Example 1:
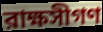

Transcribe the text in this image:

রাক্ষসীগণ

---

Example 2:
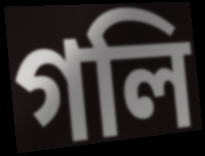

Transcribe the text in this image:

গলি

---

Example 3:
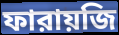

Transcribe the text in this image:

ফারায়জি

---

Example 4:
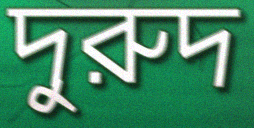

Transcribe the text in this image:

দুরুদ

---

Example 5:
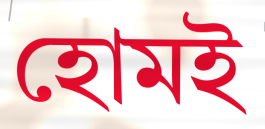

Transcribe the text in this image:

হোমই